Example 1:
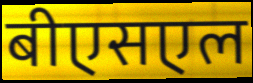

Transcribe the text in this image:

बीएसएल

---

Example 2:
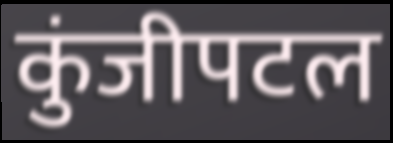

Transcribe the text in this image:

कुंजीपटल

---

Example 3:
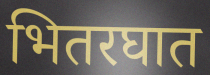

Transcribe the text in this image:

भितरघात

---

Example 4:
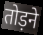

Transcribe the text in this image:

तोड़ने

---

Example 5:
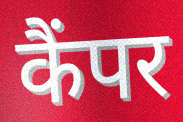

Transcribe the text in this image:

कैंपर